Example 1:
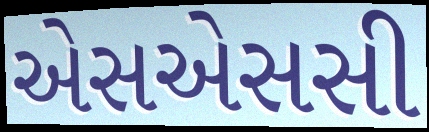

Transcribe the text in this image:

એસએસસી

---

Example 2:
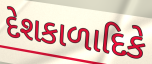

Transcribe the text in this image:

દેશકાળાદિકે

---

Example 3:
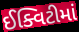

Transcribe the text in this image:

ઈક્વિટીમાં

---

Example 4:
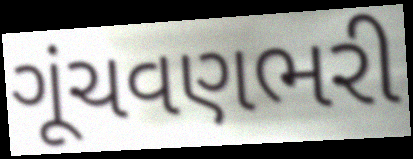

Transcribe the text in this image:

ગૂંચવણભરી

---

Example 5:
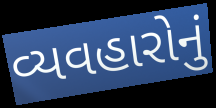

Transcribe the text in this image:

વ્યવહારોનું